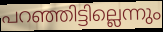
പറഞ്ഞിട്ടില്ലെന്നും